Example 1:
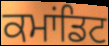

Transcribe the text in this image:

ਕਮਾਂਡਿਟ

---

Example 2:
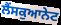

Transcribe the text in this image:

ਲੈਂਸਕੁਆਨੇਟ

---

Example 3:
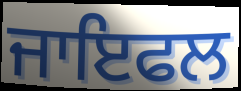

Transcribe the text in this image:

ਜਾਇਫਲ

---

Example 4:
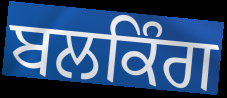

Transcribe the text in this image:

ਬਲਕਿੰਗ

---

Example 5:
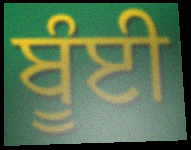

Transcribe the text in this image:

ਬੂੰਈ